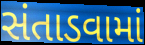
સંતાડવામાં